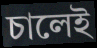
চালেই